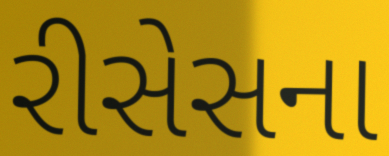
રીસેસના